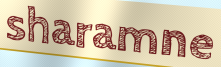
sharamne